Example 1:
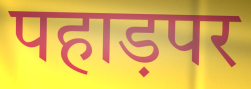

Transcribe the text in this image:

पहाड़पर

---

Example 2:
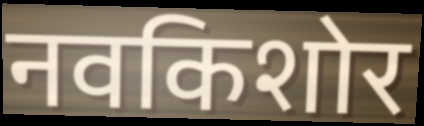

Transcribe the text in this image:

नवकिशोर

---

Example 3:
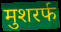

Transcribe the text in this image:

मुशरर्फ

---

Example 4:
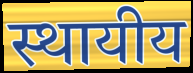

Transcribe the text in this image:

स्थायीय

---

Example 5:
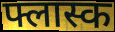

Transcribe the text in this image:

फ्लास्क